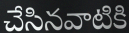
చేసినవాటికి